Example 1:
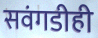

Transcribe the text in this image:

सवंगडीही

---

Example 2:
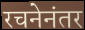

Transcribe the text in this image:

रचनेनंतर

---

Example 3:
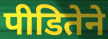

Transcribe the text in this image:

पीडितेने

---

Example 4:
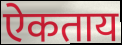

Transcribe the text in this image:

ऐकताय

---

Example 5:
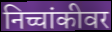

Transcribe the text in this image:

निच्चांकीवर